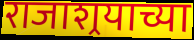
राजाश्रयाच्या